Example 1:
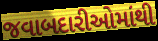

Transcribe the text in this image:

જવાબદારીઓમાંથી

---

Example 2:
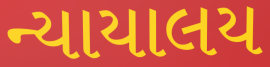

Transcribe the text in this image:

ન્યાયાલય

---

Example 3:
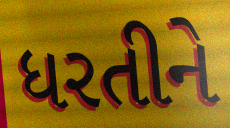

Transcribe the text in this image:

ધરતીને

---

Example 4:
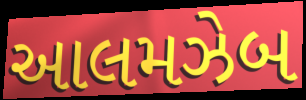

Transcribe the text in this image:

આલમઝેબ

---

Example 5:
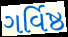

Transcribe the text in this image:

ગર્વિષ્ઠ